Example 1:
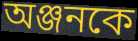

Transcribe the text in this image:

অঞ্জনকে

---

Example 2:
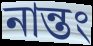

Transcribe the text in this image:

নান্তং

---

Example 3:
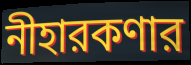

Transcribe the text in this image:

নীহারকণার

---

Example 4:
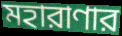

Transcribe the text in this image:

মহারাণার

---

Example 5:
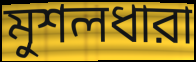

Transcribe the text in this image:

মুশলধারা